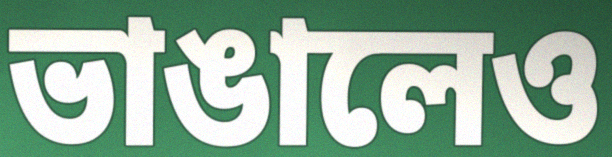
ভাঙালেও